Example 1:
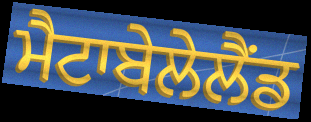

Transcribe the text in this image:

ਮੈਟਾਬੇਲੇਲੈਂਡ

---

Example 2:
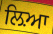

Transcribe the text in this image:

ਲ਼ਿਆ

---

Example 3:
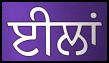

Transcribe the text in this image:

ਈਲਾਂ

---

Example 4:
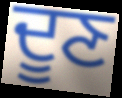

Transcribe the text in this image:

ਦੂਣ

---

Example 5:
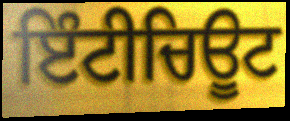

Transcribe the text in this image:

ਇੰਟੀਚਿਊਟ